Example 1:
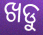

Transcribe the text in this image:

ଖଡୁ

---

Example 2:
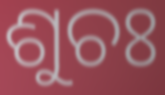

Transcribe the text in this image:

ଶୁଚଃ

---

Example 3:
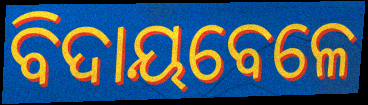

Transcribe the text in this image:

ବିଦାୟବେଳେ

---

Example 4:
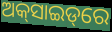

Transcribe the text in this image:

ଅକ୍‌ସାଇଡ୍‌ରେ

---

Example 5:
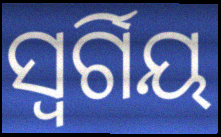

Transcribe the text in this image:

ସ୍ୱର୍ଗିୟ